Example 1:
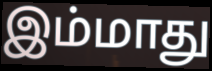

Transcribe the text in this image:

இம்மாது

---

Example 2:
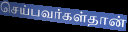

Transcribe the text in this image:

செய்பவர்கள்தான்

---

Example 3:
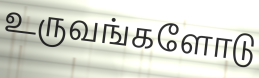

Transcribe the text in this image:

உருவங்களோடு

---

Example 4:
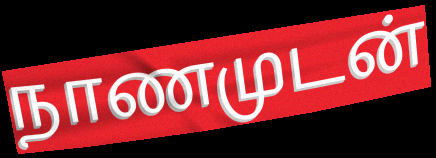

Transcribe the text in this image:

நாணமுடன்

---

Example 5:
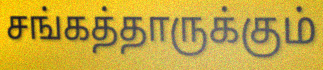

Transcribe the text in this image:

சங்கத்தாருக்கும்